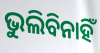
ଭୁଲିବିନାହିଁ